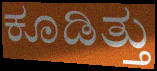
ಕೂಡಿತ್ತು